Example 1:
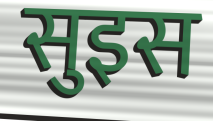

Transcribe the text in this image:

सुइस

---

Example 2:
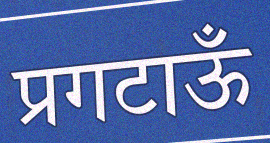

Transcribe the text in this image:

प्रगटाऊँ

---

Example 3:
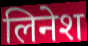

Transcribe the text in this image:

लिनेश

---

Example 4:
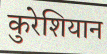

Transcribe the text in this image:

कुरेशियान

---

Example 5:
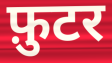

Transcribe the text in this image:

फ़ुटर